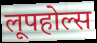
लूपहोल्स